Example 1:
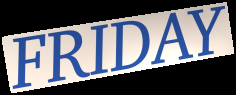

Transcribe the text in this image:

FRIDAY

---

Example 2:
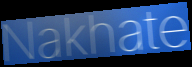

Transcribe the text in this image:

Nakhate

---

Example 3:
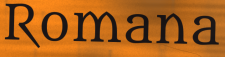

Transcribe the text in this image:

Romana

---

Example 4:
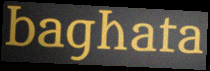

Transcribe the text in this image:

baghata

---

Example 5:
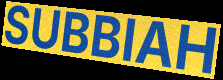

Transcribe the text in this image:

SUBBIAH